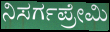
ನಿಸರ್ಗಪ್ರೇಮಿ